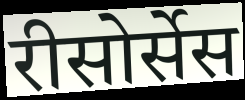
रीसोर्सेस